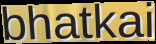
bhatkai